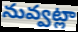
నువ్వట్లా